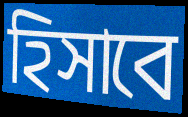
হিসাবে